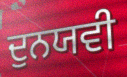
ਦੁਨਯਵੀ